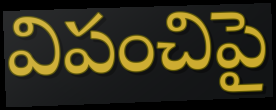
విపంచిపై